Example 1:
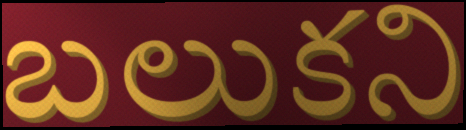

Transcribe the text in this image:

బలుకని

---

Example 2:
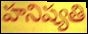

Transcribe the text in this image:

హనిష్యతి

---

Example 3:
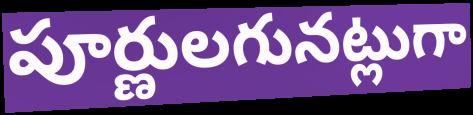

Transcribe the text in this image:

పూర్ణులగునట్లుగా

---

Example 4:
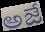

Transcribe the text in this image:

అజే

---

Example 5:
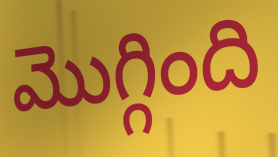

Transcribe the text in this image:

మొగ్గింది